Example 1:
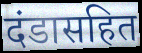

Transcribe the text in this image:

दंडासहित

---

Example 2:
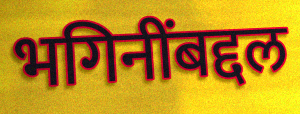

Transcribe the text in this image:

भगिनींबद्दल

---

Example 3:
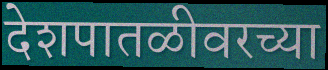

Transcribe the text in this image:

देशपातळीवरच्या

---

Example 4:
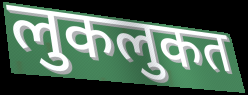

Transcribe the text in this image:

लुकलुकत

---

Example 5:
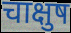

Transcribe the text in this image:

चाक्षुष